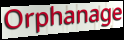
Orphanage